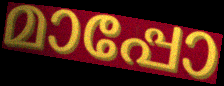
മാപ്പോ